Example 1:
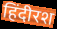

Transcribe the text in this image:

हिंदीरश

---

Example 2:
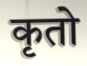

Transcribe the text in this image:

कृतो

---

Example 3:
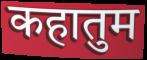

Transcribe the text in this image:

कहातुम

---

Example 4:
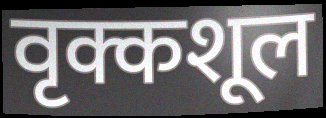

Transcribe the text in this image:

वृक्कशूल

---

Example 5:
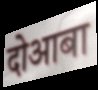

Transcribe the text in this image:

दोआबा